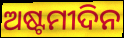
ଅଷ୍ଟମୀଦିନ